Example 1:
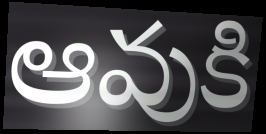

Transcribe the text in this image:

ఆవుకి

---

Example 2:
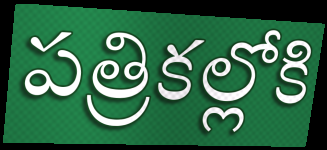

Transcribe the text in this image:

పత్రికల్లోకి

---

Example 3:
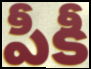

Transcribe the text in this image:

పీకీ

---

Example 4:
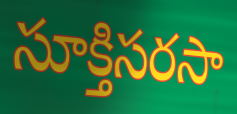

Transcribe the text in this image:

సూక్తిసరసా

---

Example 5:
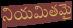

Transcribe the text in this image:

నియమితమై